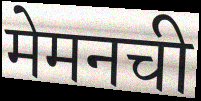
मेमनची